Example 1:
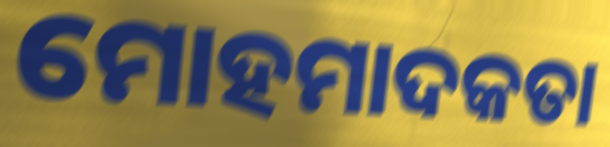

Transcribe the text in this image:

ମୋହମାଦକତା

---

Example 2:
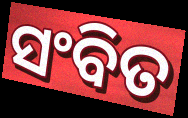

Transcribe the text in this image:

ସଂବିତ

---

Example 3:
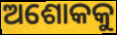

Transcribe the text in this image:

ଅଶୋକକୁ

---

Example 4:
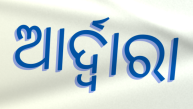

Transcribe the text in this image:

ଆର୍ଦ୍ୱାରା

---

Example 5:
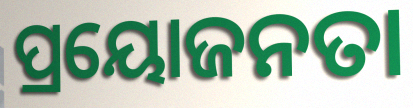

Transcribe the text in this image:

ପ୍ରୟୋଜନତା